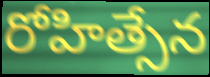
రోహిత్సేన